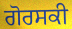
ਗੋਰਸਕੀ